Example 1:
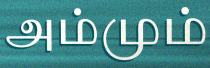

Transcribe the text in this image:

அம்மும்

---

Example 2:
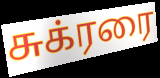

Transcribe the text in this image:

சுக்ரரை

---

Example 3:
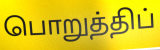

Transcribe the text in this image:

பொறுத்திப்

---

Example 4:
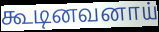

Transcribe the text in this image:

கூடினவனாய்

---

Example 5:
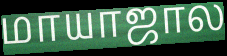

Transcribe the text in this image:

மாயாஜால